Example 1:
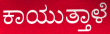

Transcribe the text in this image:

ಕಾಯುತ್ತಾಳೆ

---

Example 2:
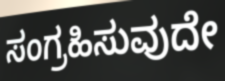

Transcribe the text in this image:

ಸಂಗ್ರಹಿಸುವುದೇ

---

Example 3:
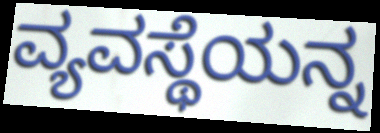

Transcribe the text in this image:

ವ್ಯವಸ್ಥೆಯನ್ನ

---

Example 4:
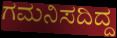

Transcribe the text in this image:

ಗಮನಿಸದಿದ್ದ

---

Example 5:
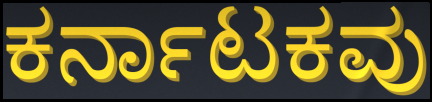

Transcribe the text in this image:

ಕರ್ನಾಟಕವು